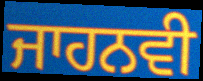
ਜਾਹਨਵੀ